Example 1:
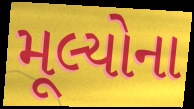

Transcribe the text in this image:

મૂલ્‍યોના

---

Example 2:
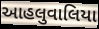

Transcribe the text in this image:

આહલુવાલિયા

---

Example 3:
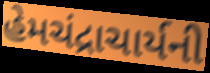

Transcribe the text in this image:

હેમચંદ્રાચાર્યની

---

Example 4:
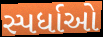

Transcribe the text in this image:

સ્પર્ધાઓ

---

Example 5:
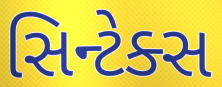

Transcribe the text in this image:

સિન્ટેક્સ